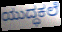
ಯುದ್ಧಕಲೆ